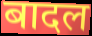
बादल